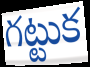
గట్టుక